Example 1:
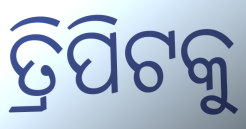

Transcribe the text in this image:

ତ୍ରିପିଟକୁ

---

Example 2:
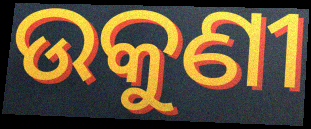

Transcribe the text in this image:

ଉକୁଣୀ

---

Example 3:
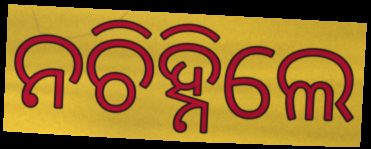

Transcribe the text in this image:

ନଚିହ୍ନିଲେ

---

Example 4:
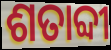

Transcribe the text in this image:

ଶତାବ୍ଦୀ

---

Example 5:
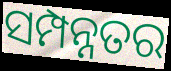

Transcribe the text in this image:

ସମ୍ପନ୍ନତର